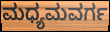
ಮಧ್ಯಮವರ್ಗ